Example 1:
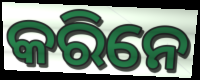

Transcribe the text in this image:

କରିନେ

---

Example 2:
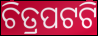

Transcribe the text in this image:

ଚିତ୍ରପଟଟି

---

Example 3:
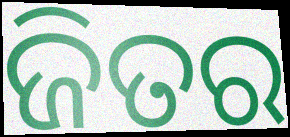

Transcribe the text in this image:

ଜିତର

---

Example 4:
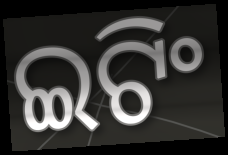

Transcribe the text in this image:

ଇଟିଂ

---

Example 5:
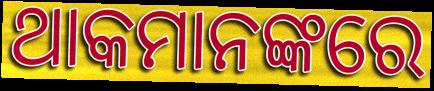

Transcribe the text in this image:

ଥାକମାନଙ୍କରେ